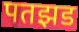
पतझड